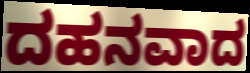
ದಹನವಾದ